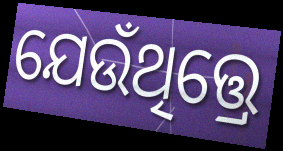
ଯେଉଁଥିତ୍ତ୍ରେ